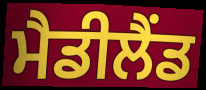
ਮੈਡੀਲੈਂਡ